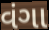
વંગા